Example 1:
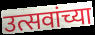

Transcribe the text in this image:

उत्सवांच्या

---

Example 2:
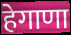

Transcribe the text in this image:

हेगाणा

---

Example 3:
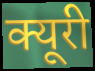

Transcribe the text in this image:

क्यूरी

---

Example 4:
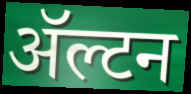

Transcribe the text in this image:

ॲल्टन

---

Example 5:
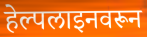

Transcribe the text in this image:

हेल्पलाइनवरून